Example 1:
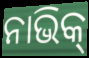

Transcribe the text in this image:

ନାଭିକ୍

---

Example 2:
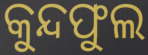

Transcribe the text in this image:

କୁନ୍ଦଫୁଲ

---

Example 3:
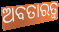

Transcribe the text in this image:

ଅବତାରତ୍ୱ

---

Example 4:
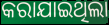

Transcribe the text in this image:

କରାଯାଇଥିଲା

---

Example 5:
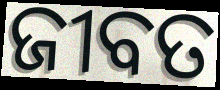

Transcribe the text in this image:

ଜୀବତ